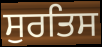
ਸੁਰਤਿਸ